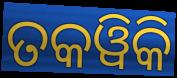
ତକୱିକି